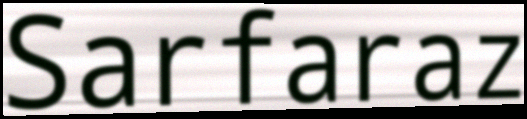
Sarfaraz